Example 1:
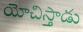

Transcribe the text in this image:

యోచిస్తాడు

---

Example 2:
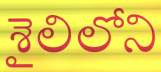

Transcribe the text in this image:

శైలిలోని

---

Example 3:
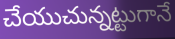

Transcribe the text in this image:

చేయుచున్నట్టుగానే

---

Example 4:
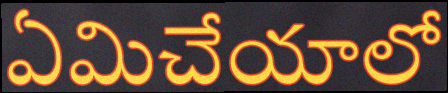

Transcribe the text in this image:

ఏమిచేయాలో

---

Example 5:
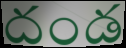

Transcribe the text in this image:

దండ